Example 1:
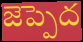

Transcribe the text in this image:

జెప్పెద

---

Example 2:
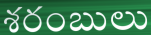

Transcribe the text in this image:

శరంబులు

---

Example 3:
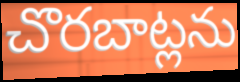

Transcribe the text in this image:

చొరబాట్లను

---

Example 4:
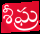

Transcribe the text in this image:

శీఘ్ర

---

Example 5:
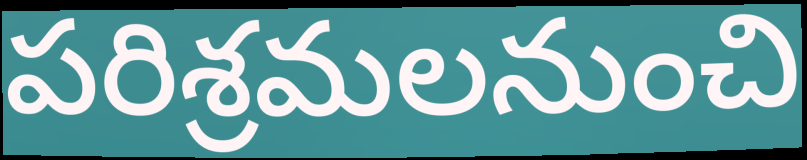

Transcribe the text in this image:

పరిశ్రమలనుంచి